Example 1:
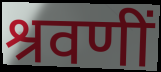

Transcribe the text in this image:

श्रवणीं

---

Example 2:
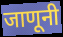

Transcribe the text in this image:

जाणूनी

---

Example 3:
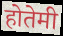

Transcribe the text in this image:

होतेमी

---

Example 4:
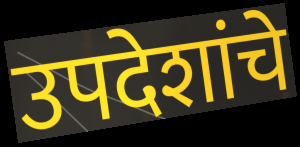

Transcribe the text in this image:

उपदेशांचे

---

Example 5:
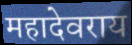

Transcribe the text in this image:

महादेवराय